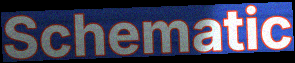
Schematic